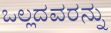
ಒಲ್ಲದವರನ್ನು